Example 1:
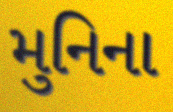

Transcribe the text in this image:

મુનિના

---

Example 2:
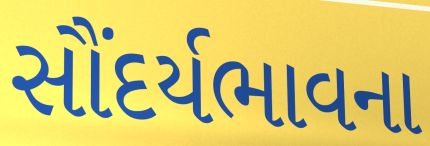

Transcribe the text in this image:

સૌંદર્યભાવના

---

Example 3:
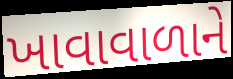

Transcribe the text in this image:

ખાવાવાળાને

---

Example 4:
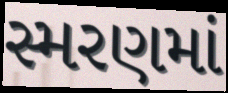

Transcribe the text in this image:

સ્મરણમાં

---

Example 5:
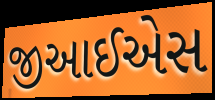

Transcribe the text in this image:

જીઆઈએસ